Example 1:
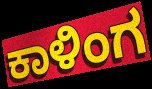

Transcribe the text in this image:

ಕಾಳಿಂಗ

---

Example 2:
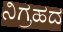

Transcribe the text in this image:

ನಿಗ್ರಹದ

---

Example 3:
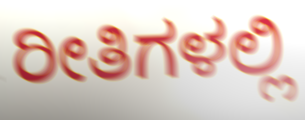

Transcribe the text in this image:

ರೀತಿಗಳಲ್ಲಿ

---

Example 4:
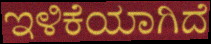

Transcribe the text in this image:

ಇಳಿಕೆಯಾಗಿದೆ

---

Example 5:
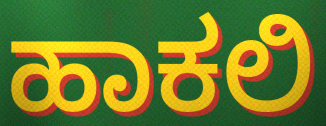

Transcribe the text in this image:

ಹಾಕಲಿ